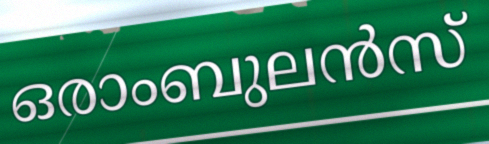
ഒരാംബുലൻസ്